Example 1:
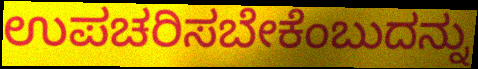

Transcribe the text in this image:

ಉಪಚರಿಸಬೇಕೆಂಬುದನ್ನು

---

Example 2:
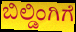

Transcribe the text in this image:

ಬಿಲ್ಡಿಂಗಿಗೆ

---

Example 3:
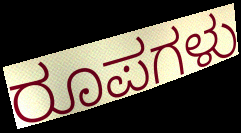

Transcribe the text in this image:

ರೂಪಗಳು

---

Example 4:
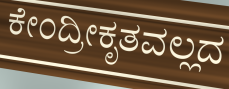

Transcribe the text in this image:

ಕೇಂದ್ರೀಕೃತವಲ್ಲದ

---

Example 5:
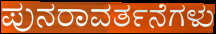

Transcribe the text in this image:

ಪುನರಾವರ್ತನೆಗಳು